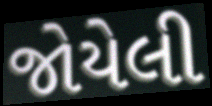
જોયેલી